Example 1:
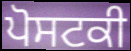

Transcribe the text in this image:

ਪੋਸਟਕੀ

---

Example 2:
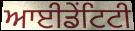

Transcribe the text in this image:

ਆਈਡੇਂਟਿਟੀ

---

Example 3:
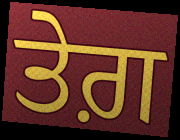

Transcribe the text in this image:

ਤੇਗ਼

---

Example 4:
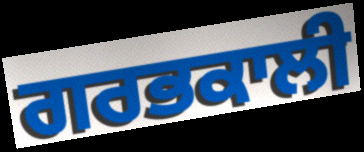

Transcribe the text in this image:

ਗਰਭਕਾਲੀ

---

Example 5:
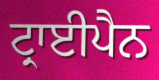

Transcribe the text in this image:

ਟ੍ਰਾਈਪੈਨ